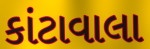
કાંટાવાલા